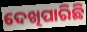
ଦେଖିପାରିଛି